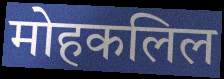
मोहकलिल